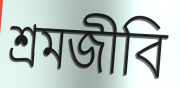
শ্রমজীবি